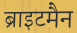
ब्राइटमैन